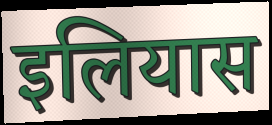
इलियास